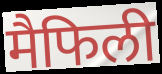
मैफिली